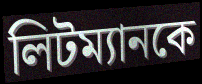
লিটম্যানকে